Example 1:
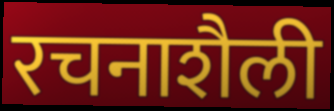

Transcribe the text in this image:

रचनाशैली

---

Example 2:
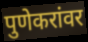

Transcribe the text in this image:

पुणेकरांवर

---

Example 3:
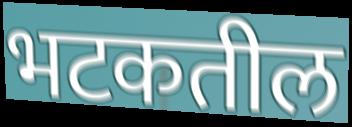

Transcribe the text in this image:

भटकतील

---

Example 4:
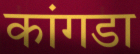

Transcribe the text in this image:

कांगडा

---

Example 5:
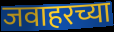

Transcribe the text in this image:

जवाहरच्या